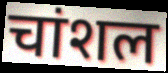
चांशल